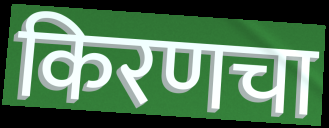
किरणचा